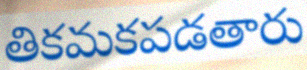
తికమకపడతారు